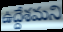
ఉద్దేశమని